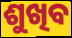
ଶୁଖିବ